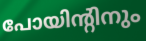
പോയിന്റിനും